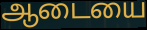
ஆடையை